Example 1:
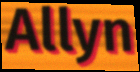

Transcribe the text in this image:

Allyn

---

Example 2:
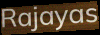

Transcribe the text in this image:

Rajayas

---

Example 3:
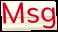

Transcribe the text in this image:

Msg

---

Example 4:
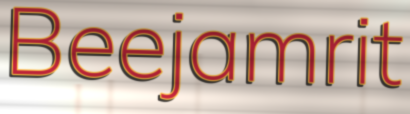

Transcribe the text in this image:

Beejamrit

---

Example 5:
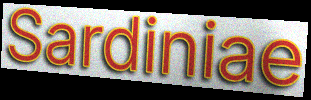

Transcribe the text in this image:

Sardiniae